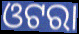
ଓଟରା